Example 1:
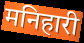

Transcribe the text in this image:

मनिहारी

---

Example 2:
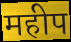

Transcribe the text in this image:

महीप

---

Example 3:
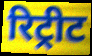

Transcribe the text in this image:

रिट्रीट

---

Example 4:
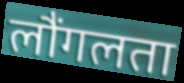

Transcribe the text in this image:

लौंगलता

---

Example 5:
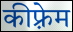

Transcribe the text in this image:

कीफ़्रेम